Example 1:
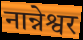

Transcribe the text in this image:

नान्नेश्वर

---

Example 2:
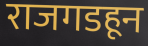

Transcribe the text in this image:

राजगडहून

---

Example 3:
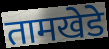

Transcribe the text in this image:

तामखेडे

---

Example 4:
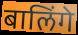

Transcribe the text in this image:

बालिंगे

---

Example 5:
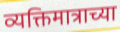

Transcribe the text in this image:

व्यक्तिमात्राच्या